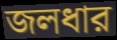
জলধার